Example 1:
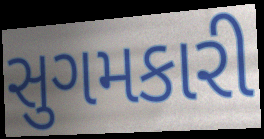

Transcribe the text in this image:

સુગમકારી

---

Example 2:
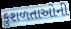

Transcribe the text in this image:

કુશળતાઓની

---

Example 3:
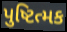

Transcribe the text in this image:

પુષ્ટિત્મક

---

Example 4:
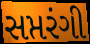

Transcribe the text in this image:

સપ્તરંગી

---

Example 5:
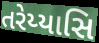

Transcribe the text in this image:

તરેય્યાસિ